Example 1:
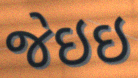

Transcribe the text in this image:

જેઇઇ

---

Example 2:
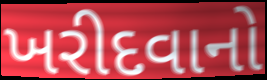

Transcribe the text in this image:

ખરીદવાનો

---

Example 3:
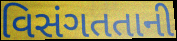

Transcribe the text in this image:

વિસંગતતાની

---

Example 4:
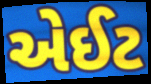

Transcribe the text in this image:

એઈટ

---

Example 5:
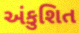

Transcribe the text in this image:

અંકુશિત